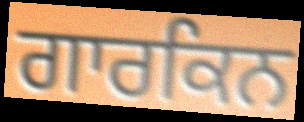
ਗਾਰਕਿਨ